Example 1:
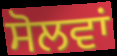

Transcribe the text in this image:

ਸੋਲਵਾਂ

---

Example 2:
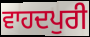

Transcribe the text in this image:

ਵਾਹਦਪੁਰੀ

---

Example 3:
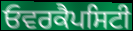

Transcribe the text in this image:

ਓਵਰਕੈਪਸਿਟੀ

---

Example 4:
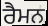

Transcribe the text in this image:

ਰੈਮਨ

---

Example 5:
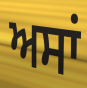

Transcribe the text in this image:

ਅਸਾਂ